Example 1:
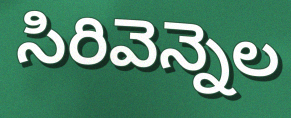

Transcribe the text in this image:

సిరివెన్నెల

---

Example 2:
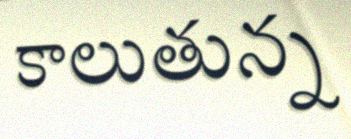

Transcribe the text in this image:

కాలుతున్న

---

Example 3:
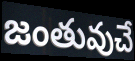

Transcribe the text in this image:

జంతువుచే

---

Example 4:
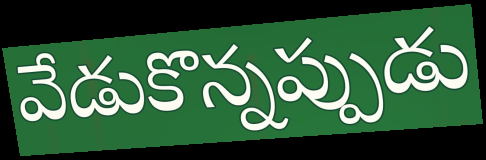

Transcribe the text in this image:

వేడుకొన్నప్పుడు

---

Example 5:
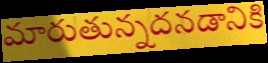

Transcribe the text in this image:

మారుతున్నదనడానికి